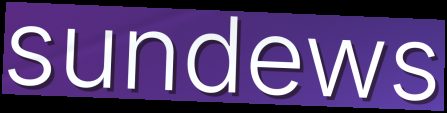
sundews